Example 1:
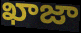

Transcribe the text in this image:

ఖాజా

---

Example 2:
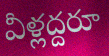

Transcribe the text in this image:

వీళ్లద్దరూ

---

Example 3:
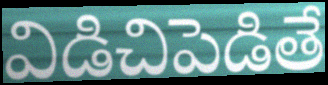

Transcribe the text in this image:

విడిచిపెడితే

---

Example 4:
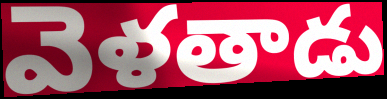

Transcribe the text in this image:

వెళతాడు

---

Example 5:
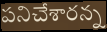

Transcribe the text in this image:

పనిచేశారన్న